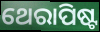
ଥେରାପିଷ୍ଟ